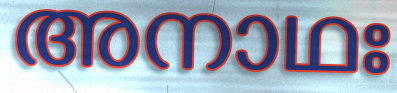
അനാഥഃ